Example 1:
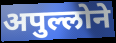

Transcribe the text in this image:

अपुल्लोने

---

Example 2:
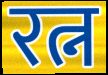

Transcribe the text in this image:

रत्न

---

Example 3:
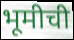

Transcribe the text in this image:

भूमीची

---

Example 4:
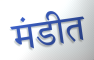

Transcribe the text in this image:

मंडीत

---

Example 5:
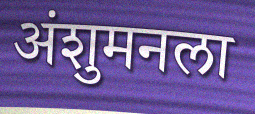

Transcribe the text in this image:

अंशुमनला